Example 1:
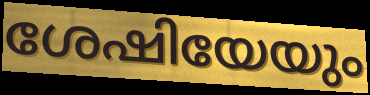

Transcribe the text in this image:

ശേഷിയേയും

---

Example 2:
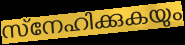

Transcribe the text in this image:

സ്‌നേഹിക്കുകയും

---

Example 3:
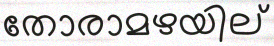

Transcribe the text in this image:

തോരാമഴയില്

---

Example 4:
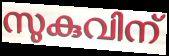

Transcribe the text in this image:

സുകുവിന്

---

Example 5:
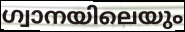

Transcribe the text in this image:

ഗ്വാനയിലെയും